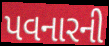
પવનારની